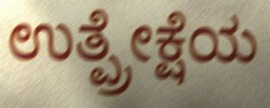
ಉತ್ಪ್ರೇಕ್ಷೆಯ